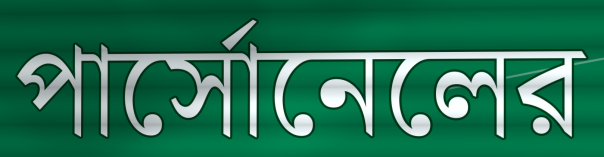
পার্সোনেলের